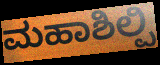
ಮಹಾಶಿಲ್ಪಿ